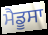
ਮੈਡੂਸਾ